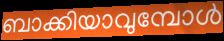
ബാക്കിയാവുമ്പോൾ